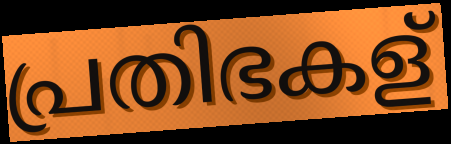
പ്രതിഭകള്